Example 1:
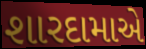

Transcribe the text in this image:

શારદામાએ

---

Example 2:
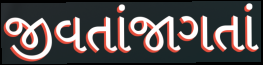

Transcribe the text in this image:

જીવતાંજાગતાં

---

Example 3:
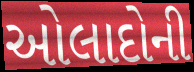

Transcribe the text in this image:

ઓલાદોની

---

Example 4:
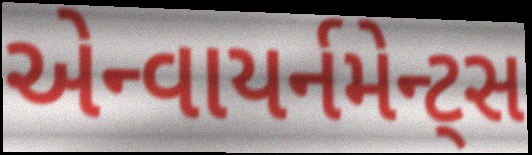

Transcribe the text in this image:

એન્વાયર્નમેન્ટ્સ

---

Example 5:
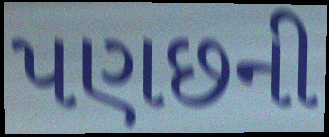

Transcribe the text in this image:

પણછની